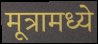
मूत्रामध्ये